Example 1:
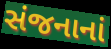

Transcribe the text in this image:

સંજનાનાં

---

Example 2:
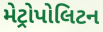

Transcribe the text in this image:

મેટ્રોપોલિટન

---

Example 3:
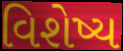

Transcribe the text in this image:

વિશેષ્ય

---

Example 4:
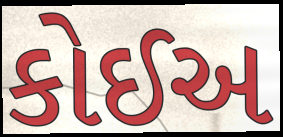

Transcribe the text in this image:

કોઈઅ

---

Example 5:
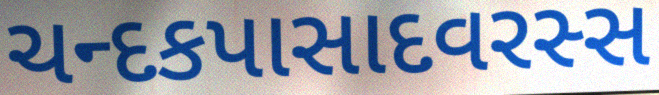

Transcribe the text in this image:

ચન્દકપાસાદવરસ્સ